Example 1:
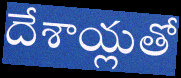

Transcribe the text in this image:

దేశాయ్లతో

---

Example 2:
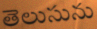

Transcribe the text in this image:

తెలుసును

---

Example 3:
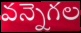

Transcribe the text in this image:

వన్నెగల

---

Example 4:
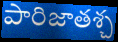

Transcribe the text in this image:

పారిజాతశ్చ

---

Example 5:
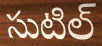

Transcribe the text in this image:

సుటిల్